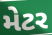
મેટર